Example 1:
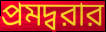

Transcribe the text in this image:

প্রমদ্বরার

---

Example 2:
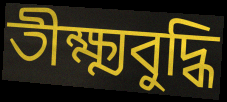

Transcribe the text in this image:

তীক্ষ্মবুদ্ধি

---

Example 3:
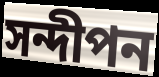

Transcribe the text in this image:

সন্দীপন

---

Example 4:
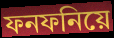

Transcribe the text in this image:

ফনফনিয়ে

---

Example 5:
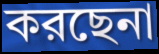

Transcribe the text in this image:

করছেনা